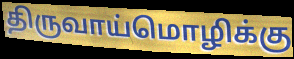
திருவாய்மொழிக்கு